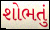
શોભતું